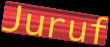
Juruf